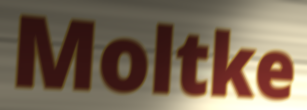
Moltke